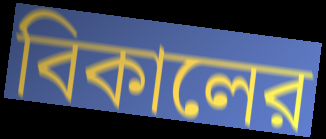
বিকালের